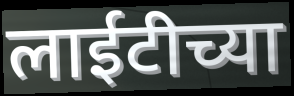
लाईटीच्या